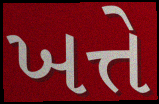
ખત્તે